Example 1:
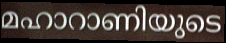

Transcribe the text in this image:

മഹാറാണിയുടെ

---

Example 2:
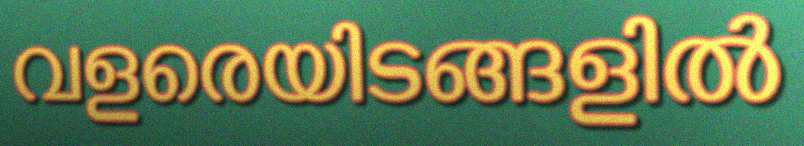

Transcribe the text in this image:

വളരെയിടങ്ങളിൽ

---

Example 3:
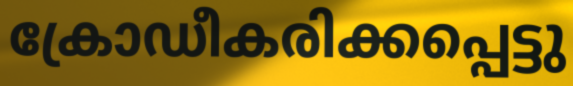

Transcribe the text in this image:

ക്രോഡീകരിക്കപ്പെട്ടു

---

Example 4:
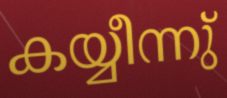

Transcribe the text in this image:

കയ്യീന്നു്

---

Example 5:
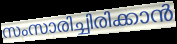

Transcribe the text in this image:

സംസാരിച്ചിരിക്കാൻ